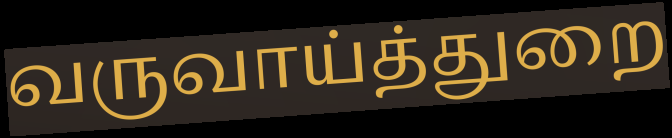
வருவாய்த்துறை